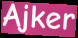
Ajker